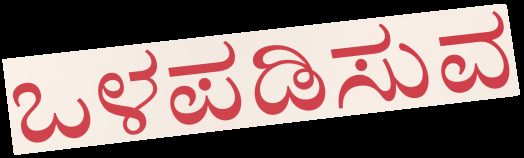
ಒಳಪಡಿಸುವ